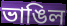
ভাঙিল